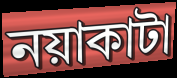
নয়াকাটা